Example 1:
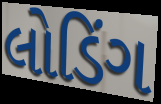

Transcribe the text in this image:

લોડિંગ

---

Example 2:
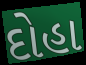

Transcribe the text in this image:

દોહા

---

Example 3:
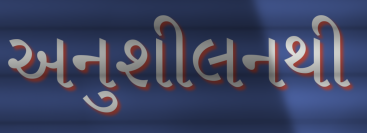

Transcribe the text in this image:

અનુશીલનથી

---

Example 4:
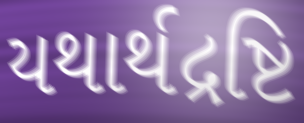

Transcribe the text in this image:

યથાર્થદ્રષ્ટિ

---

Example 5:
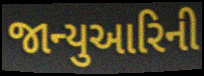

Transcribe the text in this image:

જાન્યુઆરિની